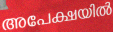
അപേക്ഷയിൽ